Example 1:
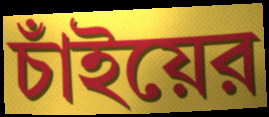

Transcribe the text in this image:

চাঁইয়ের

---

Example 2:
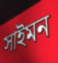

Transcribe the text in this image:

সাইমন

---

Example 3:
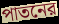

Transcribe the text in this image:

পাতনের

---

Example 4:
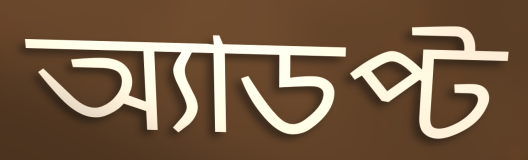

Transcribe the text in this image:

অ্যাডপ্ট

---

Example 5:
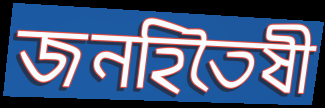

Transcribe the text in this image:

জনহিতৈষী